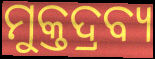
ମୁକ୍ତଦ୍ରବ୍ୟ